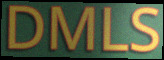
DMLS